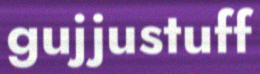
gujjustuff